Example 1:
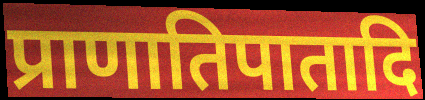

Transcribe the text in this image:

प्राणातिपातादि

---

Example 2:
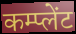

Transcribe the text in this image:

कम्प्लेंट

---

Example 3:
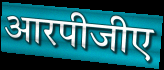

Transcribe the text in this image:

आरपीजीए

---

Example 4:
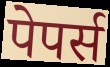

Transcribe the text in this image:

पेपर्स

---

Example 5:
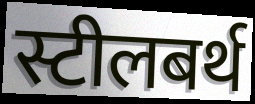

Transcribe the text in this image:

स्टीलबर्थ